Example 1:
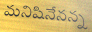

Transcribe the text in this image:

మనిషినేనన్న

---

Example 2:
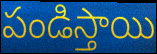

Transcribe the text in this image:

పండిస్తాయి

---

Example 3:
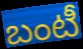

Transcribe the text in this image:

బంటీ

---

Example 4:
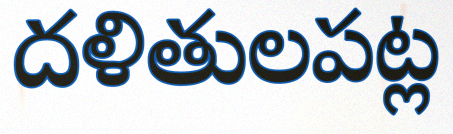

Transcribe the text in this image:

దళితులపట్ల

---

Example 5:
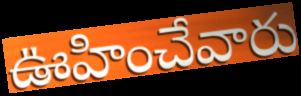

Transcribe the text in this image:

ఊహించేవారు